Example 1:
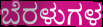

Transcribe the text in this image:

ಬೆರಳುಗಳ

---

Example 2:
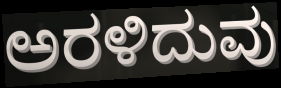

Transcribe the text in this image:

ಅರಳಿದುವು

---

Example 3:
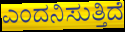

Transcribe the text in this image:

ಎಂದನಿಸುತ್ತಿದೆ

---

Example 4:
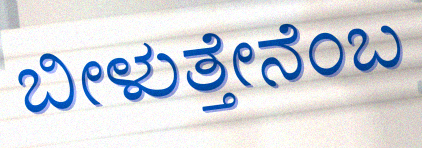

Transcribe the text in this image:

ಬೀಳುತ್ತೇನೆಂಬ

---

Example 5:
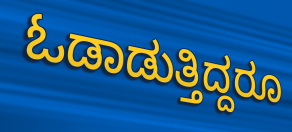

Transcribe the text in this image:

ಓಡಾಡುತ್ತಿದ್ದರೂ